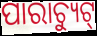
ପାରାଚ୍ୟୁଟ୍